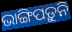
ଭାଙ୍ଗିପଡ଼ୁନି